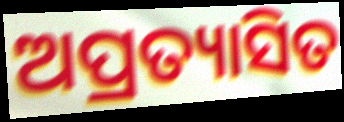
ଅପ୍ରତ୍ୟାସିତ